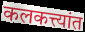
कलकत्त्यांत